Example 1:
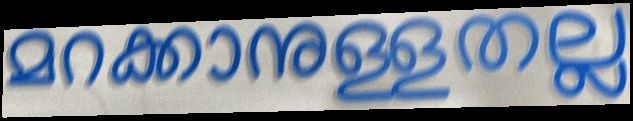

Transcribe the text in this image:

മറക്കാനുള്ളതല്ല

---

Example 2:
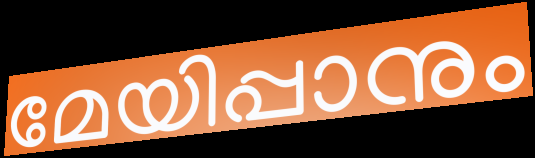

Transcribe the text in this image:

മേയിപ്പാനും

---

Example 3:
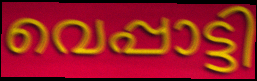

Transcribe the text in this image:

വെപ്പാട്ടി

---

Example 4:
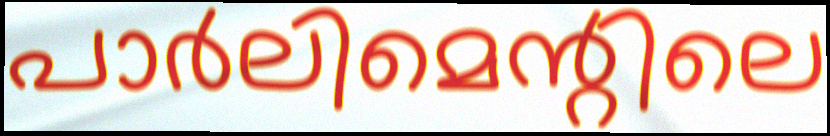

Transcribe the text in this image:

പാർലിമെന്റിലെ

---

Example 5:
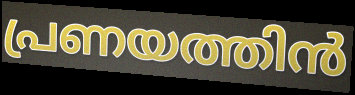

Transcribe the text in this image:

പ്രണയത്തിൻ